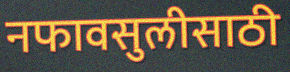
नफावसुलीसाठी